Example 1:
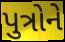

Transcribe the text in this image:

પુત્રોને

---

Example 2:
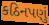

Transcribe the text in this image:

કઠિનપણું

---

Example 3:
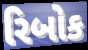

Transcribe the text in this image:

રિબોક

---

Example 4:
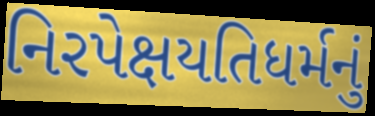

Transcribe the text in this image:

નિરપેક્ષયતિધર્મનું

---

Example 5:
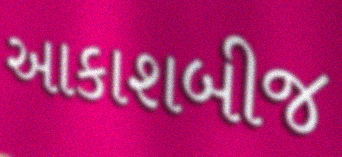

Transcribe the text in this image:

આકાશબીજ